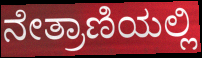
ನೇತ್ರಾಣಿಯಲ್ಲಿ